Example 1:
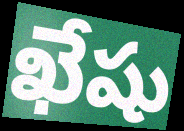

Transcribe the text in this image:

ఖేషు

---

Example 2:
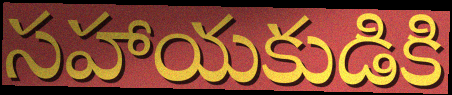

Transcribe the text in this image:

సహాయకుడికి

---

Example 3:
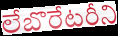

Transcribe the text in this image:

లేబొరేటరీని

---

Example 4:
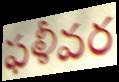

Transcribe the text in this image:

ఫళీవర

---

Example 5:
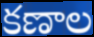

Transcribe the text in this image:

కణాల